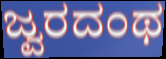
ಜ್ವರದಂಥ